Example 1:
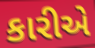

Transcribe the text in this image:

કારીએ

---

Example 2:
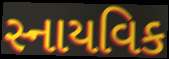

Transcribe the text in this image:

સ્નાયવિક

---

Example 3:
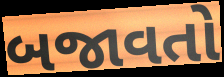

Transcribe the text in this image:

બજાવતો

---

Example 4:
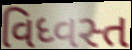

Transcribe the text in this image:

વિધ્વસ્ત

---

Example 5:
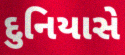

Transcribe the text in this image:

દુનિયાસે